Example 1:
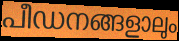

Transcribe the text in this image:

പീഡനങ്ങളാലും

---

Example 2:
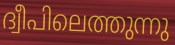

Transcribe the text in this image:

ദ്വീപിലെത്തുന്നു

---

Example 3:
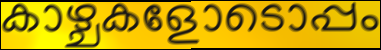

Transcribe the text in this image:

കാഴ്ചകളോടൊപ്പം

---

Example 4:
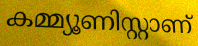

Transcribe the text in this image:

കമ്മ്യൂണിസ്റ്റാണ്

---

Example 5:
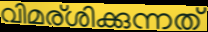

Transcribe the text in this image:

വിമര്ശിക്കുന്നത്